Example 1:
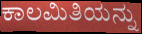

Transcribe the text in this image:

ಕಾಲಮಿತಿಯನ್ನು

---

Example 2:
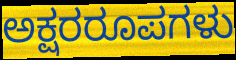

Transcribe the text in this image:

ಅಕ್ಷರರೂಪಗಳು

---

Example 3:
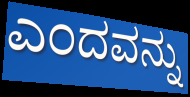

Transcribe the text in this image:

ಎಂದವನ್ನು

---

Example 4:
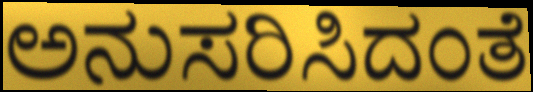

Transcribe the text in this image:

ಅನುಸರಿಸಿದಂತೆ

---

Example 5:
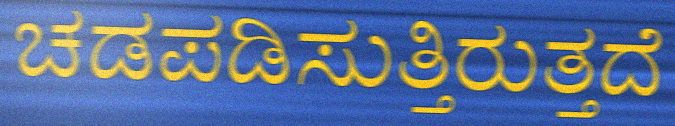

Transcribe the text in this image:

ಚಡಪಡಿಸುತ್ತಿರುತ್ತದೆ